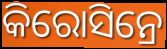
କିରୋସିନ୍ରେ